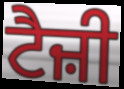
ਟੈਜ਼ੀ